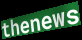
thenews